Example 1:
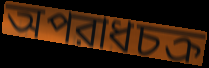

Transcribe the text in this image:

অপরাধচক্র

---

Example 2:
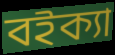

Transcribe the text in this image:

বইক্যা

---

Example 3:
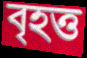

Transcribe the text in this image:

বৃহত্ত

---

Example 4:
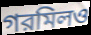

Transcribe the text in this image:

গরমিলও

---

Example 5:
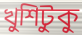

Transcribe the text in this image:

খুশিটুকু